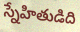
స్నేహితుడిది